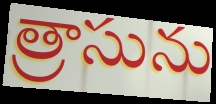
త్రాసును